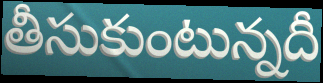
తీసుకుంటున్నదీ